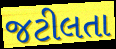
જટીલતા